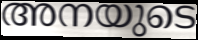
അനയുടെ